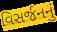
વિસર્જનનું